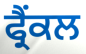
ਫ੍ਰੈਂਕਲ